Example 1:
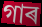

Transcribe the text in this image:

গাৰ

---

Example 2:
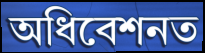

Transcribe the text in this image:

অধিবেশনত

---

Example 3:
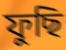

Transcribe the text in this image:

ফুছি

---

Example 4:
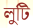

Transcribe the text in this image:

লুটি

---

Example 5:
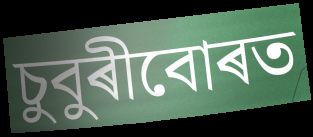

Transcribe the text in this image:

চুবুৰীবোৰত